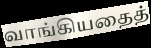
வாங்கியதைத்